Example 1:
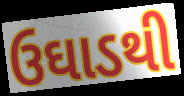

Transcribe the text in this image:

ઉઘાડથી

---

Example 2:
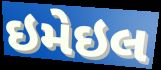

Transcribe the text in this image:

ઇમેઇલ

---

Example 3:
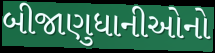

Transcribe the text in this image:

બીજાણુધાનીઓનો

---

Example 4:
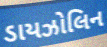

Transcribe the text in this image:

ડાયઝોલિન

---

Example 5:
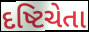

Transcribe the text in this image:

દષ્ટિચેતા